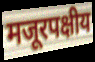
मजूरपक्षीय